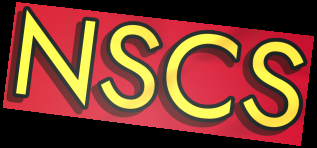
NSCS